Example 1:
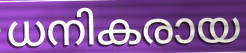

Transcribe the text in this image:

ധനികരായ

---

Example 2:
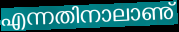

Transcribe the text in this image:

എന്നതിനാലാണു്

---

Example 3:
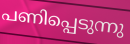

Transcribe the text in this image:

പണിപ്പെടുന്നു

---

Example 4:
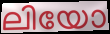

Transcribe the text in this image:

ലിയോ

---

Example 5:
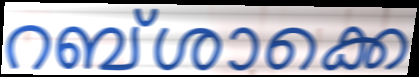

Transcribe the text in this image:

റബ്ശാക്കെ